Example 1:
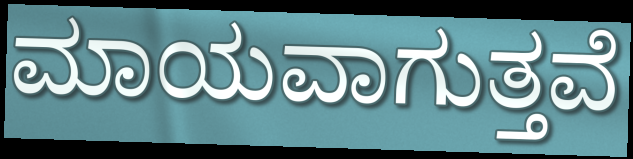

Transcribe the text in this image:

ಮಾಯವಾಗುತ್ತವೆ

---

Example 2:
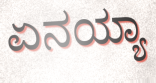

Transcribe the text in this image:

ಏನಯ್ಯಾ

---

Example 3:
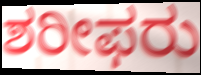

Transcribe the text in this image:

ಶರೀಫರು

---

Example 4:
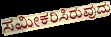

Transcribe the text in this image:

ಸಮೀಕರಿಸಿರುವುದು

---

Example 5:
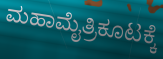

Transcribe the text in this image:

ಮಹಾಮೈತ್ರಿಕೂಟಕ್ಕೆ